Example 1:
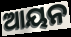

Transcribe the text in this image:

ଆୟନ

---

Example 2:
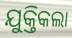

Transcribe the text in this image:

ଯୁକ୍ତିକଲା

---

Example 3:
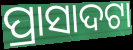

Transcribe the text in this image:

ପ୍ରାସାଦଟା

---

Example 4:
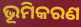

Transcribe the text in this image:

ଭୂମିକରଣ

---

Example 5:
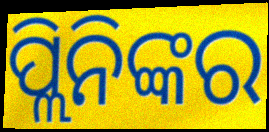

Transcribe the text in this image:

ପ୍ଲିନିଙ୍କର